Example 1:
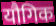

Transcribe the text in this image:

यौगिक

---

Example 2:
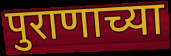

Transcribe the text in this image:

पुराणाच्या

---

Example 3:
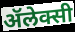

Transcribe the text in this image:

ॲलेक्सी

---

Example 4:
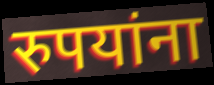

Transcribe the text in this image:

रुपयांना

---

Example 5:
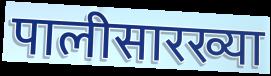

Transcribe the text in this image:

पालीसारख्या